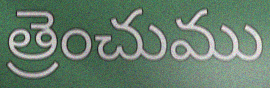
త్రెంచుము